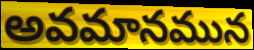
అవమానమున